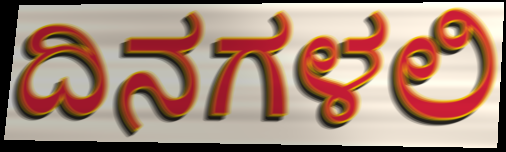
ದಿನಗಳಲಿ